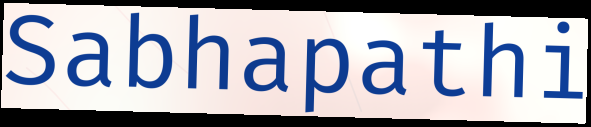
Sabhapathi